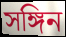
সঙ্গিন